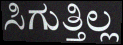
ಸಿಗುತ್ತಿಲ್ಲ